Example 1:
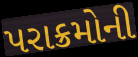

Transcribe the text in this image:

પરાક્રમોની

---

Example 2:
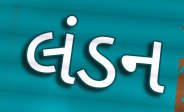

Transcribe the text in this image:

લંડન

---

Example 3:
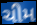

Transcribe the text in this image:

ચીમ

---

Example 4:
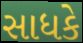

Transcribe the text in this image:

સાધકે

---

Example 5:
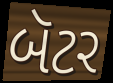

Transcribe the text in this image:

બૅટર